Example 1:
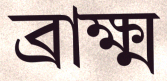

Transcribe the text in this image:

ব্রাক্ষ্ম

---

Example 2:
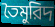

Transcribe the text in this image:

তৈমুরিদ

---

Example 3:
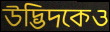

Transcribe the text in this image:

উদ্ভিদকেও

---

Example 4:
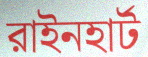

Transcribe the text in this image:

রাইনহার্ট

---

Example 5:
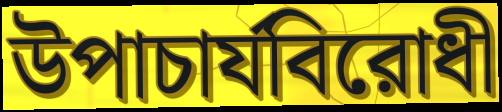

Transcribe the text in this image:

উপাচার্যবিরোধী